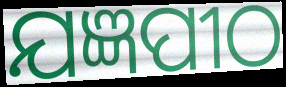
ଯଜ୍ଞପୀଠ